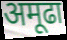
अमूढा